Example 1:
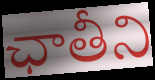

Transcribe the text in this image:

ఛాతీని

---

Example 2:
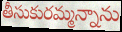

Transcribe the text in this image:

తీసుకురమ్మన్నాను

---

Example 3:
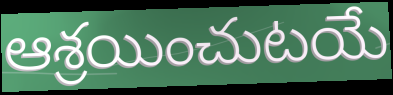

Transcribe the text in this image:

ఆశ్రయించుటయే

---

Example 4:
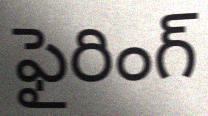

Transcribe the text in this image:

ఫైరింగ్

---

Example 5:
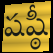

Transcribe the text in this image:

షష్ఠీ